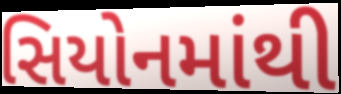
સિયોનમાંથી